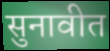
सुनावीत